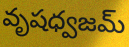
వృషధ్వజమ్